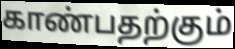
காண்பதற்கும்